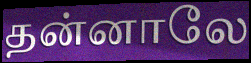
தன்னாலே